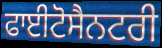
ਫਾਈਟੋਸੈਨਟਰੀ